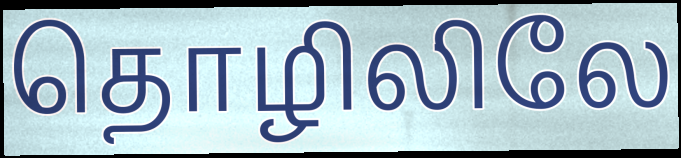
தொழிலிலே